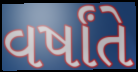
વર્ષાંતે